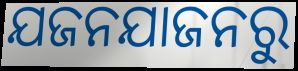
ଯଜନଯାଜନରୁ